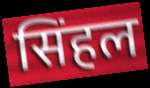
सिंहल